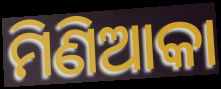
ମିଣିଆକା